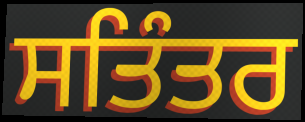
ਸਤਿੰਤਰ